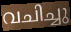
വചിച്ചു